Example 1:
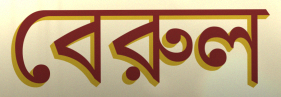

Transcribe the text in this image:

বেরুল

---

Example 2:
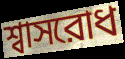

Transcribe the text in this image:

শ্বাসরোধ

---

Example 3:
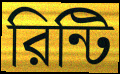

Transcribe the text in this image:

রিন্টি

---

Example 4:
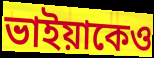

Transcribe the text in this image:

ভাইয়াকেও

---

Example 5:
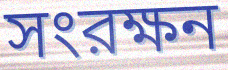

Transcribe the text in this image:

সংরক্ষন